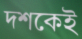
দশকেই